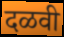
दळवी